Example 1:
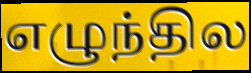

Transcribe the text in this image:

எழுந்தில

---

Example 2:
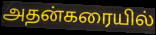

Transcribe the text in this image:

அதன்கரையில்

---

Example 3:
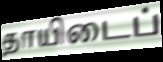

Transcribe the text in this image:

தாயிடைப்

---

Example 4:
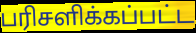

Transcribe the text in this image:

பரிசளிக்கப்பட்ட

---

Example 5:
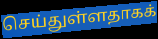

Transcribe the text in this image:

செய்துள்ளதாகக்